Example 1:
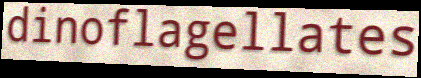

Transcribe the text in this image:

dinoflagellates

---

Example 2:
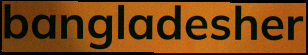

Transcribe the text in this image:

bangladesher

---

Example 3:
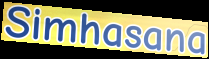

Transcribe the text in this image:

Simhasana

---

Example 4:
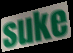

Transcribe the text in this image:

suke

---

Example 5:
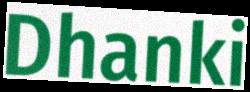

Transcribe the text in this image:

Dhanki